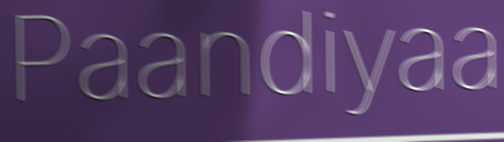
Paandiyaa